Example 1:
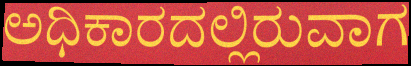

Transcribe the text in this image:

ಅಧಿಕಾರದಲ್ಲಿರುವಾಗ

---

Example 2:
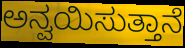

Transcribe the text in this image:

ಅನ್ವಯಿಸುತ್ತಾನೆ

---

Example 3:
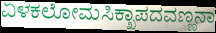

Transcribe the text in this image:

ಏಳಕಲೋಮಸಿಕ್ಖಾಪದವಣ್ಣನಾ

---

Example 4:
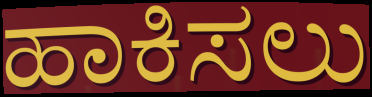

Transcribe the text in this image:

ಹಾಕಿಸಲು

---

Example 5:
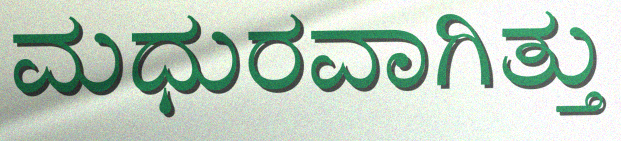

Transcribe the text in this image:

ಮಧುರವಾಗಿತ್ತು